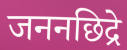
जननछिद्रे